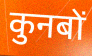
कुनबों